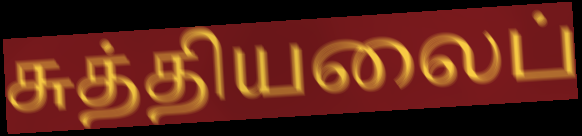
சுத்தியலைப்